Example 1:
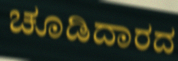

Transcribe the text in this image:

ಚೂಡಿದಾರದ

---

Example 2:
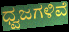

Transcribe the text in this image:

ಧ್ವಜಗಳಿವೆ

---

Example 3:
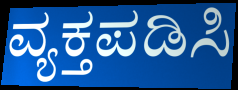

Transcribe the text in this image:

ವ್ಯಕ್ತಪಡಿಸಿ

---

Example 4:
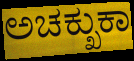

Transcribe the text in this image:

ಅಚಕ್ಖುಕಾ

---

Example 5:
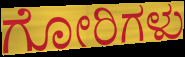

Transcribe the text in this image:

ಗೋರಿಗಳು